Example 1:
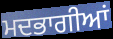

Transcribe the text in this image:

ਮਦਭਾਗੀਆਂ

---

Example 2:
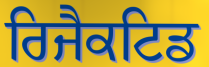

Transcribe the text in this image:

ਰਿਜੈਕਟਿਡ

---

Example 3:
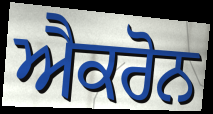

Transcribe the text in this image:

ਐਕਰੋਨ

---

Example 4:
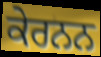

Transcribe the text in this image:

ਕੇਰਨਨ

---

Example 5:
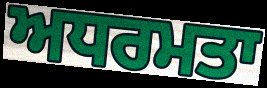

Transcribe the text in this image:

ਅਧਰਮਤਾ